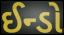
ઈન્ડો